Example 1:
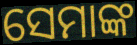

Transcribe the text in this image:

ସେମାଙ୍କ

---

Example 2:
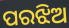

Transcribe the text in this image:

ପରଝିଅ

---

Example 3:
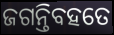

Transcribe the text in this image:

ଜଗନ୍ତିବହତେ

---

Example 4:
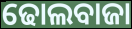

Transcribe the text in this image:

ଢୋଲବାଜା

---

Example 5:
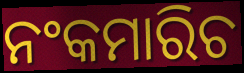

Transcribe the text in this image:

ନଂକମାରିଚ